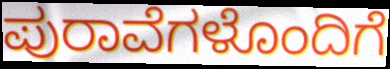
ಪುರಾವೆಗಳೊಂದಿಗೆ